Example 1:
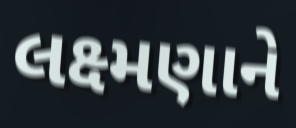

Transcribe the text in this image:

લક્ષ્મણાને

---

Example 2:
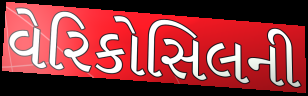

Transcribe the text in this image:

વેરિકોસિલની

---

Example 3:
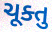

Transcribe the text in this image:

ચૂક્તુ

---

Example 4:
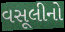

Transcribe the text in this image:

વસૂલીનો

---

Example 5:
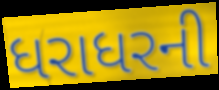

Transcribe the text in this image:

ધરાધરની